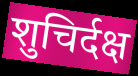
शुचिर्दक्ष